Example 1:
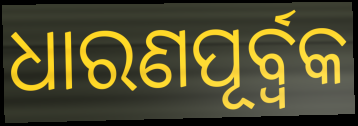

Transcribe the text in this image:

ଧାରଣପୂର୍ବ୍ବକ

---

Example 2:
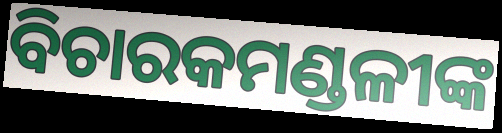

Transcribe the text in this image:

ବିଚାରକମଣ୍ଡଳୀଙ୍କ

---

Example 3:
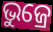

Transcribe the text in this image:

ଭୁଜ୍ରେ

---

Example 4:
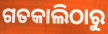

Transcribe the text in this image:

ଗତକାଲିଠାରୁ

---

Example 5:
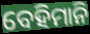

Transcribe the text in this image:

ବେହିମାନି